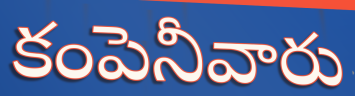
కంపెనీవారు